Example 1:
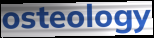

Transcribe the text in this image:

osteology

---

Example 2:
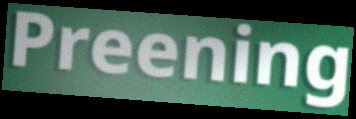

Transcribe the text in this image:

Preening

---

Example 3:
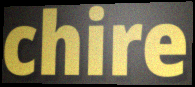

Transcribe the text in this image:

chire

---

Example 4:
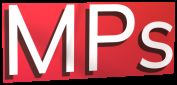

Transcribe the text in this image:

MPs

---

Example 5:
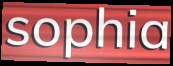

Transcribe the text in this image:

sophia